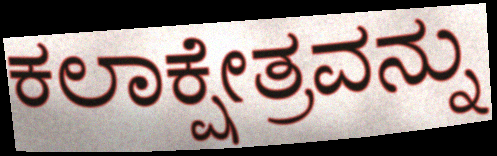
ಕಲಾಕ್ಷೇತ್ರವನ್ನು